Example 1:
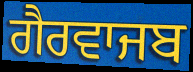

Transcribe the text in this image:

ਗੈਰਵਾਜਬ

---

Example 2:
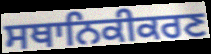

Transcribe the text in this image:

ਸਥਾਨਿਕੀਕਰਣ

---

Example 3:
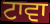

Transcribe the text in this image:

ਟਾਵਾ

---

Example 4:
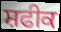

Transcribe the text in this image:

ਸ਼ਫੀਕ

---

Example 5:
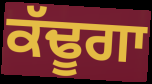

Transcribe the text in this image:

ਕੱਢੂਗਾ